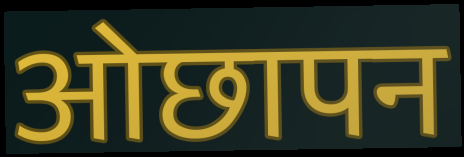
ओछापन